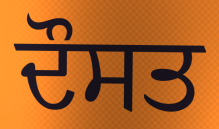
ਦੌਸਤ